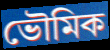
ভৌমিক